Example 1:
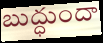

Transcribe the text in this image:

బుద్ధుందా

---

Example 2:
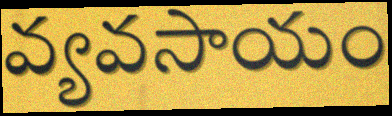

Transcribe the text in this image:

వ్యవసాయం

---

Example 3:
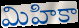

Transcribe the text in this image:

మిహికా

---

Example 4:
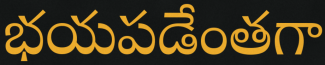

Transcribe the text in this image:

భయపడేంతగా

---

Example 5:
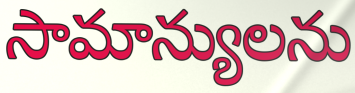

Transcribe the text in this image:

సామాన్యులను